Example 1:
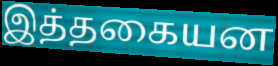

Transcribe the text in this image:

இத்தகையன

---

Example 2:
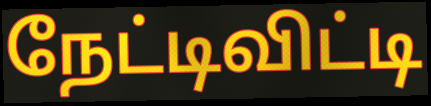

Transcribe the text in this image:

நேட்டிவிட்டி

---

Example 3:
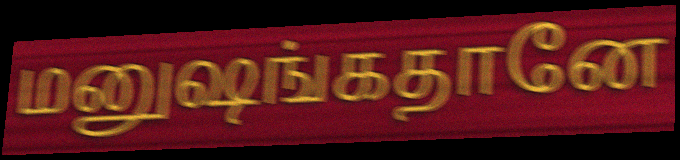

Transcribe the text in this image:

மனுஷங்கதானே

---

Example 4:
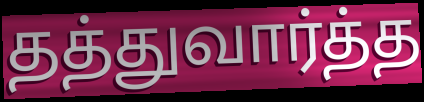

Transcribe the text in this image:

தத்துவார்த்த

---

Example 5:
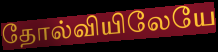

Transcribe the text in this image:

தோல்வியிலேயே